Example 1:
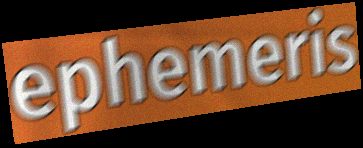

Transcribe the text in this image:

ephemeris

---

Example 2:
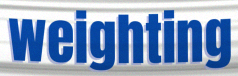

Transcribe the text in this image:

weighting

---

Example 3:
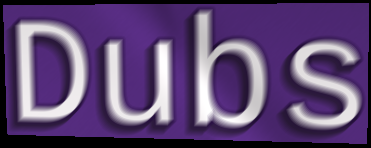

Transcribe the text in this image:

Dubs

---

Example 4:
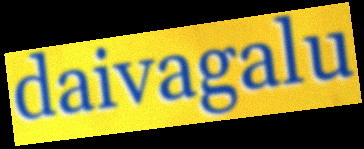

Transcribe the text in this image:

daivagalu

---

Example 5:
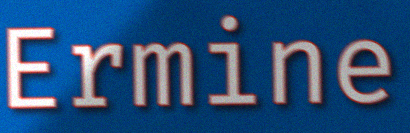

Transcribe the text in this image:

Ermine